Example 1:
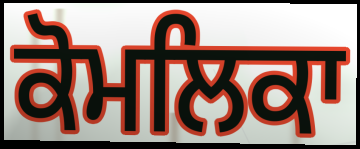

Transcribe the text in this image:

ਕੋਮਲਿਕਾ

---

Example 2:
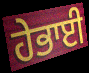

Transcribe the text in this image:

ਹੇਭਾਈ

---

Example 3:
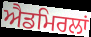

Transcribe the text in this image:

ਐਡਮਿਰਲਾਂ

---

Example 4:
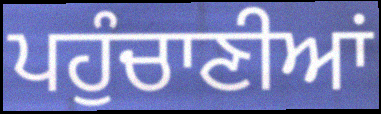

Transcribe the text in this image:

ਪਹੁੰਚਾਣੀਆਂ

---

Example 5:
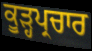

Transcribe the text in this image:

ਕੂੜ੍ਹਪ੍ਰਚਾਰ